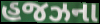
હજઝના